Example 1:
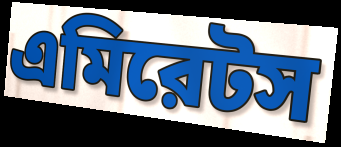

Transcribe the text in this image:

এমিরেটস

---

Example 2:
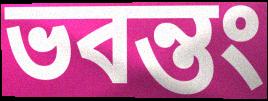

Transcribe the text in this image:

ভবন্তং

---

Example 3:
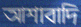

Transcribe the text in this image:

আশাবাদি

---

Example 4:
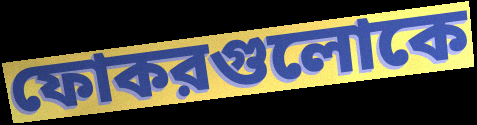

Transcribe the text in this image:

ফোকরগুলোকে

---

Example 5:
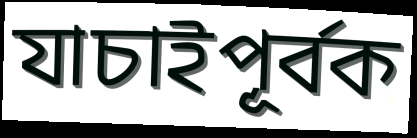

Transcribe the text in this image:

যাচাইপূর্বক